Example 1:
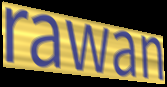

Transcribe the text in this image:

rawan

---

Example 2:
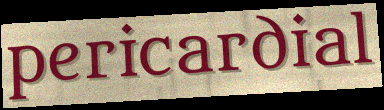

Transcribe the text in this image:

pericardial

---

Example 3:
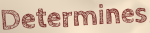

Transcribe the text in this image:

Determines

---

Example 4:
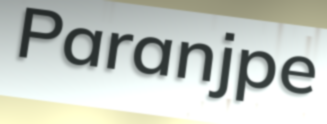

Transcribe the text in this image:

Paranjpe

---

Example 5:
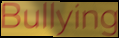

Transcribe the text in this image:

Bullying